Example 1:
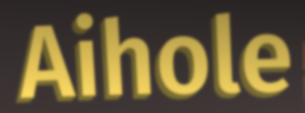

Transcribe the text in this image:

Aihole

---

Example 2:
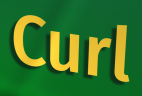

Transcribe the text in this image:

Curl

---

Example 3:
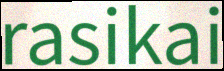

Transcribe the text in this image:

rasikai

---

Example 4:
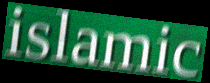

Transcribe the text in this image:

islamic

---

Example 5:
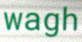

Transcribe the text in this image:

wagh